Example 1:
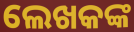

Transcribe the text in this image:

ଲେଖକଙ୍କ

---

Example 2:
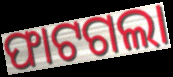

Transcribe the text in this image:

ଫାଟଗଲା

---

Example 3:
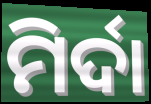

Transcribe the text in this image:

ମିର୍ଦା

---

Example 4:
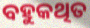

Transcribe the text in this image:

ବହୁକଥିତ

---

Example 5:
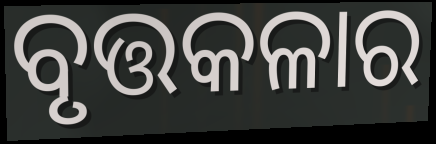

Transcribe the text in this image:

ବୃତ୍ତକଳାର